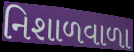
નિશાળવાળા